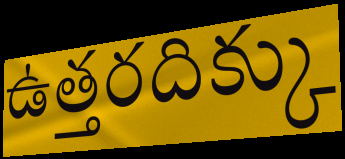
ఉత్తరదిక్కు